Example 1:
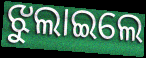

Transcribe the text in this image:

ଝୁଲାଇଲେ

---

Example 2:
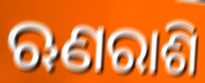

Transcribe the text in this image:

ଋଣରାଶି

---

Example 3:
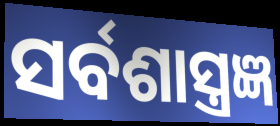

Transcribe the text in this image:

ସର୍ବଶାସ୍ତ୍ରଜ୍ଞ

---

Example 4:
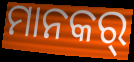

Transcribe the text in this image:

ମାନକର୍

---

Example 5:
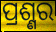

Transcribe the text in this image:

ପ୍ରଶ୍ଣର